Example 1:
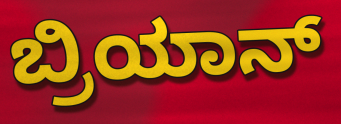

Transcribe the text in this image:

ಬ್ರಿಯಾನ್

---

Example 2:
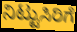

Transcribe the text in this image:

ನಿಟ್ಟುಸಿರಿಗೆ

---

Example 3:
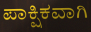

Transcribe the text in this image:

ಪಾಕ್ಷಿಕವಾಗಿ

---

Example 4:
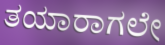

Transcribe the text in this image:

ತಯಾರಾಗಲೇ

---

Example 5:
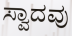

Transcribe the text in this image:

ಸ್ವಾದವು